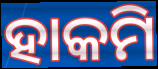
ହାକମି